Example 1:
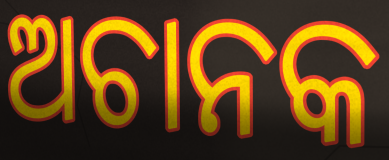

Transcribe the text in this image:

ଅଚାନକ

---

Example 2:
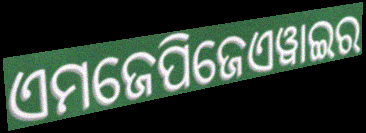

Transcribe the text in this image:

ଏମଜେପିଜେଏୱାଇର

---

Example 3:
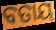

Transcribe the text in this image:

ବତାୟ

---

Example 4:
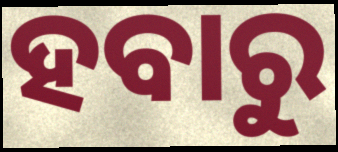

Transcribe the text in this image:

ହବାରୁ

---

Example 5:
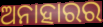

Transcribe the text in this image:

ଅନାହାରର